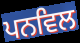
ਪਨਵਿਲ